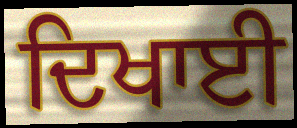
ਦਿਖਾਈ